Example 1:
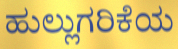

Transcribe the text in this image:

ಹುಲ್ಲುಗರಿಕೆಯ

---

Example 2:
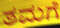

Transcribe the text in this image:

ತಮಗೆ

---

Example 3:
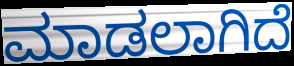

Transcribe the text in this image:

ಮಾಡಲಾಗಿದೆ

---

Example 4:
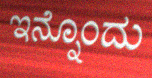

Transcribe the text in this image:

ಇನ್ನೊಂದು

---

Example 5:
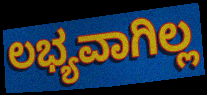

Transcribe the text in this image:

ಲಭ್ಯವಾಗಿಲ್ಲ